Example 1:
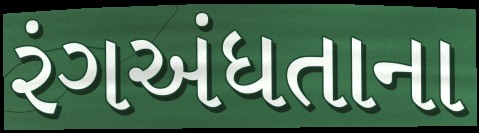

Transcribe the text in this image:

રંગઅંધતાના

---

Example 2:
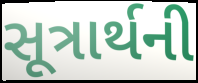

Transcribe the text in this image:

સૂત્રાર્થની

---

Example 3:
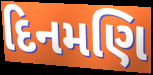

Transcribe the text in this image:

દિનમણિ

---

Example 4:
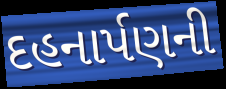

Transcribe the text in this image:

દહનાર્પણની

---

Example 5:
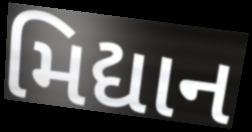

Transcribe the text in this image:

મિદ્યાન